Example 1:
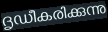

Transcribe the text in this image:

ദൃഡീകരിക്കുന്നു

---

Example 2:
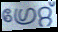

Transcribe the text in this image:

ഗ്രേറ്റ്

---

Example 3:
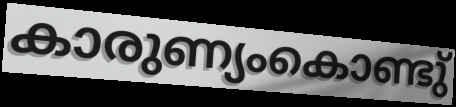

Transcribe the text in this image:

കാരുണ്യംകൊണ്ടു്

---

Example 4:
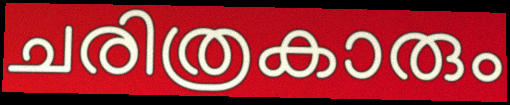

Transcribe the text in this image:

ചരിത്രകാരും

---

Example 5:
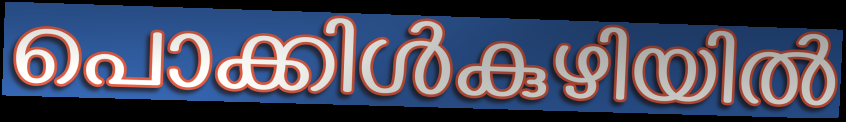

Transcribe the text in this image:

പൊക്കിൾകുഴിയിൽ